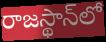
రాజస్థాన్‌లో